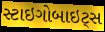
સ્ટાઇગોબાઇટ્સ